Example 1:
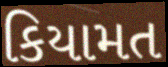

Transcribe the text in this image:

કિયામત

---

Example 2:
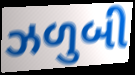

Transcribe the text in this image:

ઝળુબી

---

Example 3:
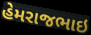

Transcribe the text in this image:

હેમરાજભાઇ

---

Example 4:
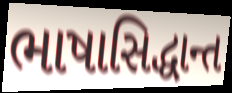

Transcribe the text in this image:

ભાષાસિદ્ધાન્ત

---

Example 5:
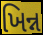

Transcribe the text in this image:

ખિન્ન